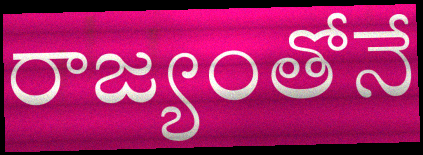
రాజ్యంతోనే